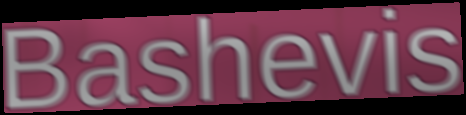
Bashevis